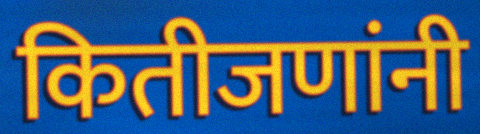
कितीजणांनी